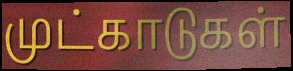
முட்காடுகள்